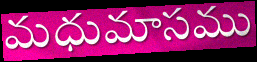
మధుమాసము